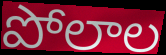
పోలాల